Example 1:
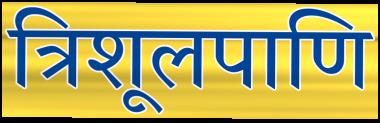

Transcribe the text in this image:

त्रिशूलपाणि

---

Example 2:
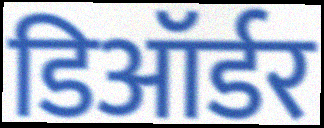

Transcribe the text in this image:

डिऑर्डर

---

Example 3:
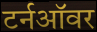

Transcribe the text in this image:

टर्नऑवर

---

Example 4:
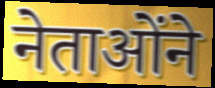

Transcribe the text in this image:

नेताओंने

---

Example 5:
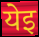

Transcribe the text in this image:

येइ